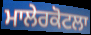
ਮਾਲੇਰਕੋਟਲਾ